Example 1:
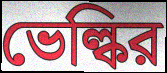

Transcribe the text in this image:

ভেল্কির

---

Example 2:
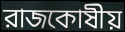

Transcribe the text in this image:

রাজকোষীয়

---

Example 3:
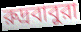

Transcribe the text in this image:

রুদ্রবাবুরা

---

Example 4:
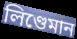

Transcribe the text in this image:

লিণ্ডেমান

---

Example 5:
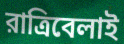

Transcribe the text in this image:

রাত্রিবেলাই